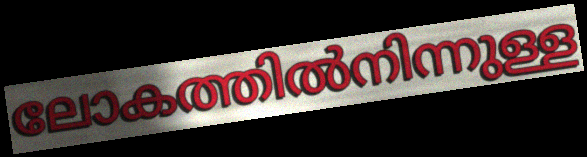
ലോകത്തിൽനിന്നുള്ള